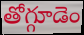
తోగ్గూడెం